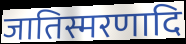
जातिस्मरणादि